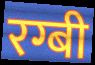
रग्बी